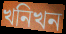
খনিখন